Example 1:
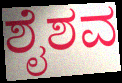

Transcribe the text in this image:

ಶೈಶವ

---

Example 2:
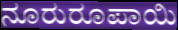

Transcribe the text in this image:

ನೂರುರೂಪಾಯಿ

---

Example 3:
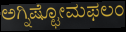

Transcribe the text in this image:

ಅಗ್ನಿಷ್ಟೋಮಫಲಂ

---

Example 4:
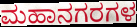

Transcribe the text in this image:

ಮಹಾನಗರಗಳ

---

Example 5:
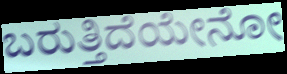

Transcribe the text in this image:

ಬರುತ್ತಿದೆಯೇನೋ